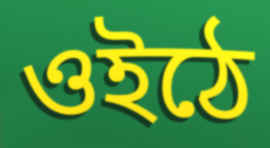
ওইঠে